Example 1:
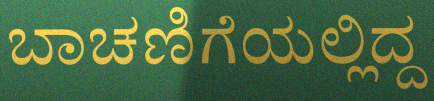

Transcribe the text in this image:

ಬಾಚಣಿಗೆಯಲ್ಲಿದ್ದ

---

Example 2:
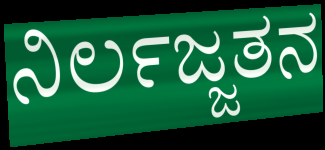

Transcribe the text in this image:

ನಿರ್ಲಜ್ಜತನ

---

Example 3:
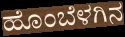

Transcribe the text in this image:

ಹೊಂಬೆಳಗಿನ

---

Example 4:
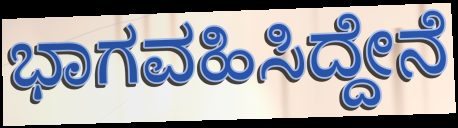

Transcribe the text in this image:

ಭಾಗವಹಿಸಿದ್ದೇನೆ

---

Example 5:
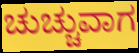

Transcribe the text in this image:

ಚುಚ್ಚುವಾಗ